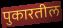
पुकारतील